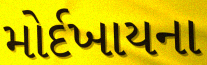
મોર્દખાયના